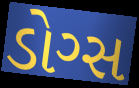
ડોગ્સ